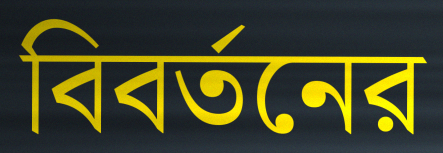
বিবর্তনের